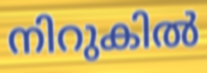
നിറുകിൽ